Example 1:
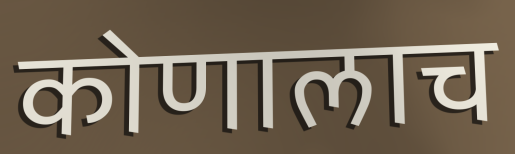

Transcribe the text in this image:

कोणालाच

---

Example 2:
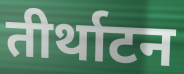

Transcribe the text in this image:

तीर्थाटन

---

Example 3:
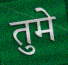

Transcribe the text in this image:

तुमे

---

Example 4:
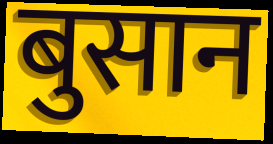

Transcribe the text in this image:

बुसान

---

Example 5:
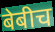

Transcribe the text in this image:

बेबीच